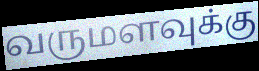
வருமளவுக்கு